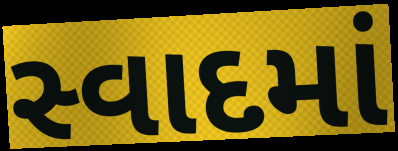
સ્વાદમાં